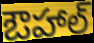
ఔహాల్